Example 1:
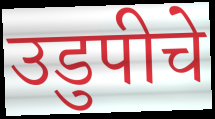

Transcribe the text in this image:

उडुपीचे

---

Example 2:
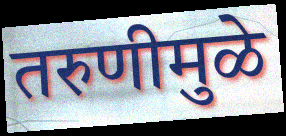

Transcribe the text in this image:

तरुणीमुळे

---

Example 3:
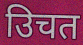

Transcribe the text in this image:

उिचत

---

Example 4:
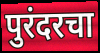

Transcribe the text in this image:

पुरंदरचा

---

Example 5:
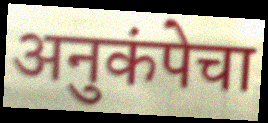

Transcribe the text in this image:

अनुकंपेचा